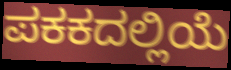
ಪಕಕದಲ್ಲಿಯೆ